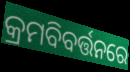
କ୍ରମବିବର୍ତ୍ତନରେ